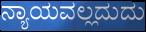
ನ್ಯಾಯವಲ್ಲದುದು